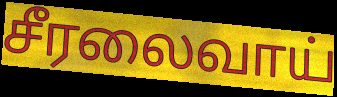
சீரலைவாய்